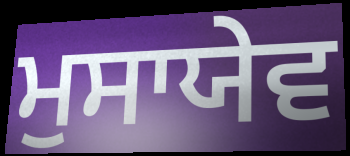
ਮੁਸਾਯੇਵ